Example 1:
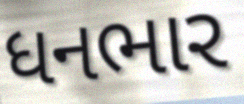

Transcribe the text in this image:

ધનભાર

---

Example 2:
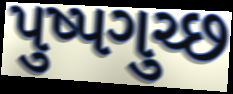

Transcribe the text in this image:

પુષ્પગુચ્છ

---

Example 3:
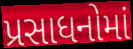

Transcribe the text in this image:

પ્રસાધનોમાં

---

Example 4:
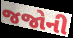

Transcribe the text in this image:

જજોની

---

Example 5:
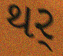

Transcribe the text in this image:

થર્